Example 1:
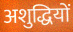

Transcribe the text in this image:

अशुद्धियों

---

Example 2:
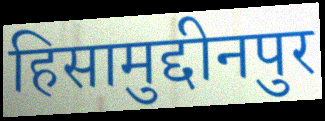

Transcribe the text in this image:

हिसामुद्दीनपुर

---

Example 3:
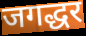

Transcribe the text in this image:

जगद्धर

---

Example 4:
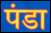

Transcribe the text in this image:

पंडा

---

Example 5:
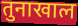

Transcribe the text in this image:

तुनाखाल